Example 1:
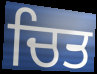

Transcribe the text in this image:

ਚਿਤ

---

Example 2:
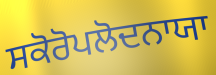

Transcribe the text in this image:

ਸਕੋਰੋਪਲੋਦਨਾਯਾ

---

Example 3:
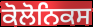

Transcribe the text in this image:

ਕੋਲੋਨਿਕਸ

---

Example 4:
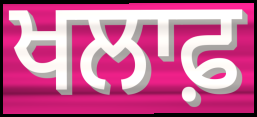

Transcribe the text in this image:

ਖਲਾਫ਼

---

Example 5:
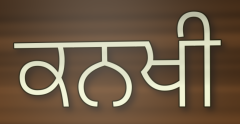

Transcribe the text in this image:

ਕਨਖੀ